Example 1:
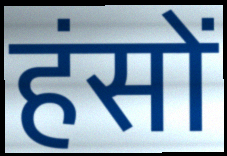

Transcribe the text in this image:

हंसों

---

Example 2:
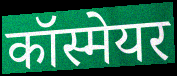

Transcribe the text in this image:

कॉस्मेयर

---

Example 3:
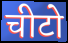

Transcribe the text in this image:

चीटो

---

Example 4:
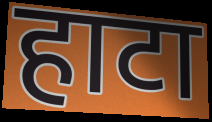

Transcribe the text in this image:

हाटा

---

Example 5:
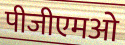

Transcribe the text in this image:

पीजीएमओ